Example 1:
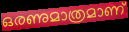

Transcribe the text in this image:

ഒരണുമാത്രമാണ്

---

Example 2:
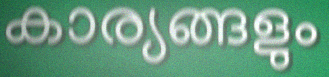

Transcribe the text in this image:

കാര്യങ്ങളും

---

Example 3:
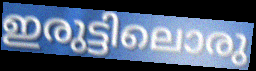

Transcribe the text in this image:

ഇരുട്ടിലൊരു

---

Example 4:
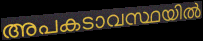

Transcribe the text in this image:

അപകടാവസ്ഥയിൽ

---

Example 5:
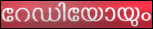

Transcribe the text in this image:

റേഡിയോയും